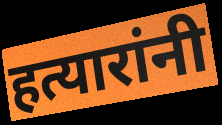
हत्यारांनी